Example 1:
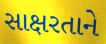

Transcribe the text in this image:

સાક્ષરતાને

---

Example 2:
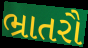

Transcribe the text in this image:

ભ્રાતરૌ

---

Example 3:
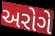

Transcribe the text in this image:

અરોગે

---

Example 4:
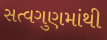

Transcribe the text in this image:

સત્વગુણમાંથી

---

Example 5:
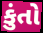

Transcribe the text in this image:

કુંતો